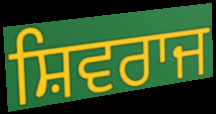
ਸ਼ਿਵਰਾਜ